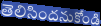
తెలిసిందనుకోండి